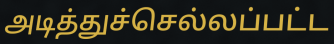
அடித்துச்செல்லப்பட்ட